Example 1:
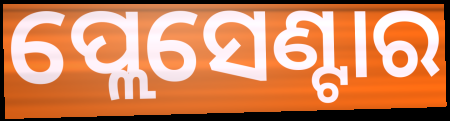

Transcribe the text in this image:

ପ୍ଲେସେଣ୍ଟାର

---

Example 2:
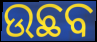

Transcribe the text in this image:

ଉଛବ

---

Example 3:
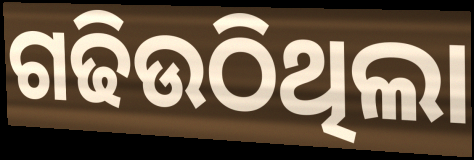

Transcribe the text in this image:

ଗଢିଉଠିଥିଲା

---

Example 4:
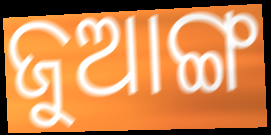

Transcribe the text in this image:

ଜୁଆଙ୍ଗ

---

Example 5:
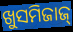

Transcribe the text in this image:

ଖୁସମିଜାଜ୍